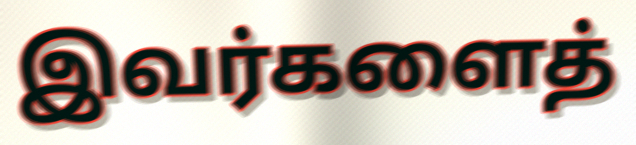
இவர்களைத்